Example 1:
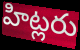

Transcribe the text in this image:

హిట్లరు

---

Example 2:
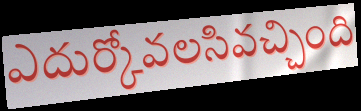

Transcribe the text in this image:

ఎదుర్కోవలసివచ్చింది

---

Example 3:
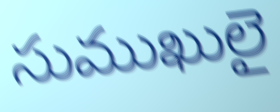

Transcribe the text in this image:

సుముఖులై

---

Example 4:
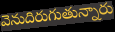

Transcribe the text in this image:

వెనుదిరుగుతున్నారు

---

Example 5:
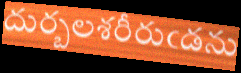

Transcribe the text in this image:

దుర్బలశరీరుఁడను